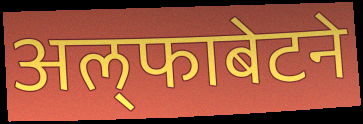
अल्फाबेटने